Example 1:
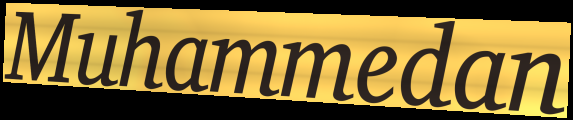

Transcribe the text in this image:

Muhammedan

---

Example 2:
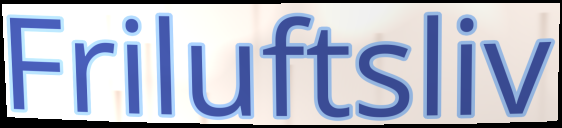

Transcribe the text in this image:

Friluftsliv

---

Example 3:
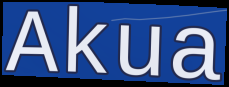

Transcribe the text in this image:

Akua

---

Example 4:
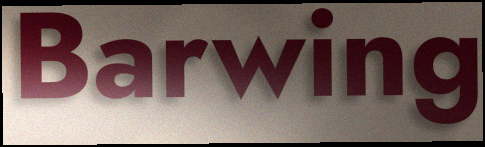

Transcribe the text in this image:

Barwing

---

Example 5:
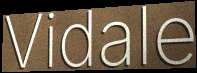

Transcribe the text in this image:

Vidale